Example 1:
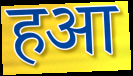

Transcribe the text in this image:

हआ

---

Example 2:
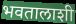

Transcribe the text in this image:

भवतालाशी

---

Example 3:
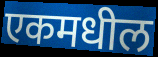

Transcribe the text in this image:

एकमधील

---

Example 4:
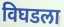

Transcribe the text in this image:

विघडला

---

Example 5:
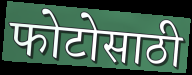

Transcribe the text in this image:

फोटोसाठी